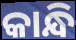
କାନ୍ଧି